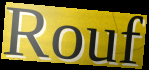
Rouf